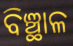
ବିଞ୍ଛାଳ